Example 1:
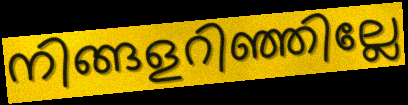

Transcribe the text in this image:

നിങ്ങളറിഞ്ഞില്ലേ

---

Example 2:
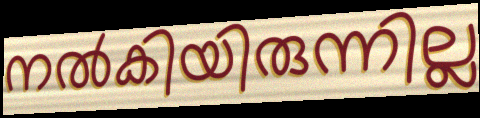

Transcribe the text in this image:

നൽകിയിരുന്നില്ല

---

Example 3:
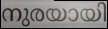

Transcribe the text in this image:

നുരയായി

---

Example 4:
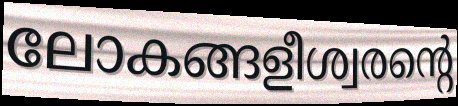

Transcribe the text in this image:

ലോകങ്ങളീശ്വരന്റെ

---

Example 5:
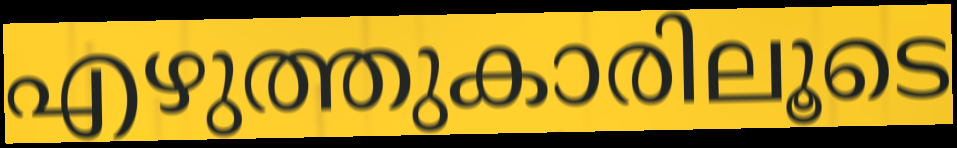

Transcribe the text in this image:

എഴുത്തുകാരിലൂടെ